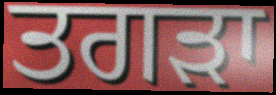
ਤਗੜਾ